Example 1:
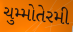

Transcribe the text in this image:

ચુમ્મોતેરમી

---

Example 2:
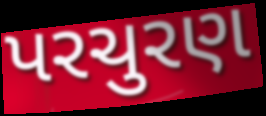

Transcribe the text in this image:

પરચુરણ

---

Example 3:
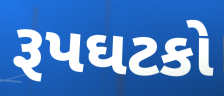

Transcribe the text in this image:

રૂપઘટકો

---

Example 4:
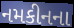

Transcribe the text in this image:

નમકીનના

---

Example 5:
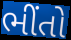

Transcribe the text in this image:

ભીંતો